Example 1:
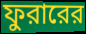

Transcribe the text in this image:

ফুরারের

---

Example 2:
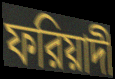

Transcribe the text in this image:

ফরিয়াদী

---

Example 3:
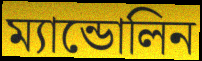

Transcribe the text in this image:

ম্যান্ডোলিন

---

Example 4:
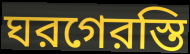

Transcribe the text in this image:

ঘরগেরস্তি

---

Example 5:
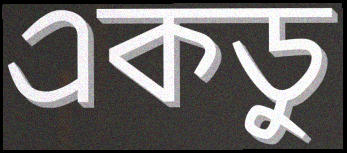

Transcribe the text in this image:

একডু